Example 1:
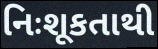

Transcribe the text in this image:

નિઃશૂકતાથી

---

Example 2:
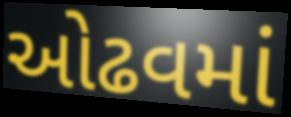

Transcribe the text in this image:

ઓઢવમાં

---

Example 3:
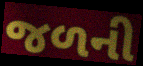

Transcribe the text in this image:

જળની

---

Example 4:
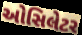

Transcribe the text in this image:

ઓસિલેટર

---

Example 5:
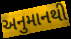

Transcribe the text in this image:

અનુમાનથી